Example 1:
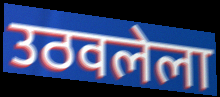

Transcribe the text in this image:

उठवलेला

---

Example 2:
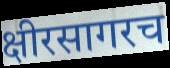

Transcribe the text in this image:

क्षीरसागरच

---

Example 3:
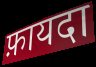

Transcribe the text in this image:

फ़ायदा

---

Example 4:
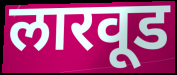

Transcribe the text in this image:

लारवूड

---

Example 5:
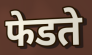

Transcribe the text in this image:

फेडते